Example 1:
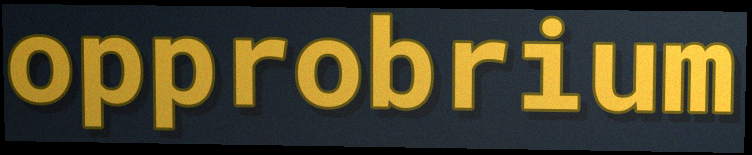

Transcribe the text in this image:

opprobrium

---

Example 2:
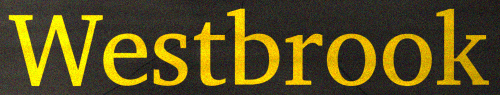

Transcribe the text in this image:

Westbrook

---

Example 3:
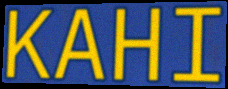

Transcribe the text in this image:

KAHI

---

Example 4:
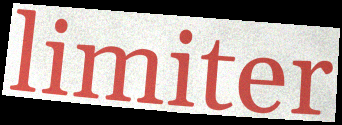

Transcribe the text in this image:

limiter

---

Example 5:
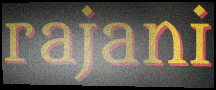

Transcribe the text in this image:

rajani